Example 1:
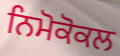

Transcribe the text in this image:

ਨਿਮੋਕੋਕਲ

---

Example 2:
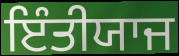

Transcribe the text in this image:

ਇੰਤੀਯਾਜ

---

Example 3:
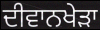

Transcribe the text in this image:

ਦੀਵਾਨਖੇੜਾ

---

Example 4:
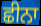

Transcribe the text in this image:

ਛੀਨਾ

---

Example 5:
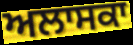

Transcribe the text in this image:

ਅਲਾਸਕਾ